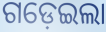
ଗଡ଼େଇଲା